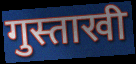
गुस्ताखी